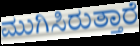
ಮುಗಿಸಿರುತ್ತಾರೆ